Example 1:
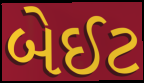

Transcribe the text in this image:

બેઈટ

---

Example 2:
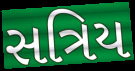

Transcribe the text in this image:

સત્રિય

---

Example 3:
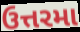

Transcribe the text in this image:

ઉત્તરમા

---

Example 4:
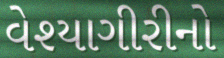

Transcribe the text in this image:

વેશ્યાગીરીનો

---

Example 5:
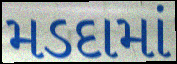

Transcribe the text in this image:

મડદામાં